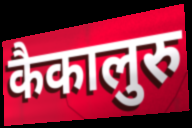
कैकालुरु